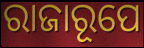
ରାଜାରୂପେ